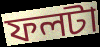
ফলটা